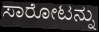
ಸಾರೋಟನ್ನು